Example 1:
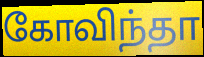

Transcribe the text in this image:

கோவிந்தா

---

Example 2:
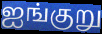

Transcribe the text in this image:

ஐங்குறு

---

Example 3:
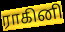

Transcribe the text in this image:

ராகினி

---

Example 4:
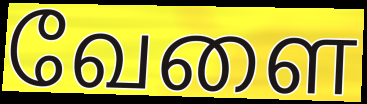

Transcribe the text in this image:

வேளை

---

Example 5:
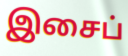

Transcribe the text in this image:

இசைப்